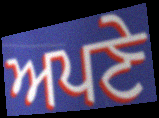
ਅਪਣੇ